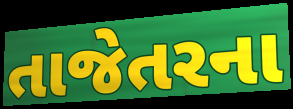
તાજેતરના